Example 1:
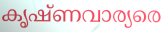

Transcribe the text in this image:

കൃഷ്ണവാര്യരെ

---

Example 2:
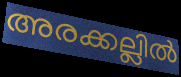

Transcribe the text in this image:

അരക്കല്ലിൽ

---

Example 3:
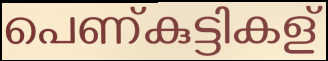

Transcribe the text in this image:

പെണ്കുട്ടികള്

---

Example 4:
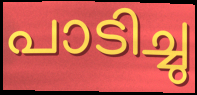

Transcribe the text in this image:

പാടിച്ചു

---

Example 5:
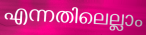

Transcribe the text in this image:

എന്നതിലെല്ലാം